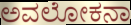
ಅವಲೋಕನಾ